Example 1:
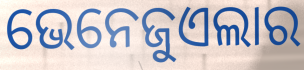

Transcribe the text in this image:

ଭେନେଜୁଏଲାର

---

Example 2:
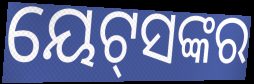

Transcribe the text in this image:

ୟେଟ୍‌ସଙ୍କର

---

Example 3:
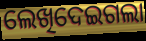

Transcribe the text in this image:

ଲେଖିଦେଇଗଲା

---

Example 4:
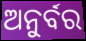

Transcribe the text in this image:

ଅନୁର୍ବର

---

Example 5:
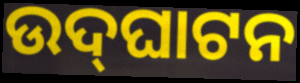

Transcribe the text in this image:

ଉଦ୍‌ଘାଟନ